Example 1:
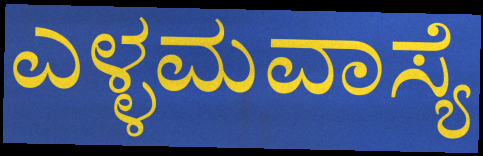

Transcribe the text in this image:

ಎಳ್ಳಮವಾಸ್ಯೆ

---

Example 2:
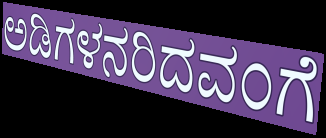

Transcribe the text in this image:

ಅಡಿಗಳನರಿದವಂಗೆ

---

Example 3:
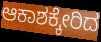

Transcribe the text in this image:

ಆಕಾಶಕ್ಕೇರಿದ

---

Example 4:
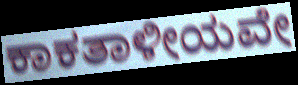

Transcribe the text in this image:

ಕಾಕತಾಳೀಯವೇ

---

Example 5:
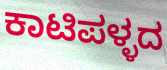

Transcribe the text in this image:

ಕಾಟಿಪಳ್ಳದ